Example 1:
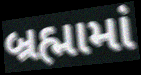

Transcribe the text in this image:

બ્રહ્મામાં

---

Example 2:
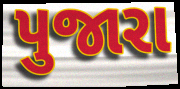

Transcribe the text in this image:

પુજારા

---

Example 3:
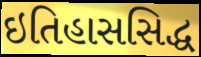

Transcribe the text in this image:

ઇતિહાસસિદ્ધ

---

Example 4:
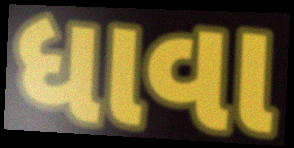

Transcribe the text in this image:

ધાવા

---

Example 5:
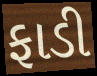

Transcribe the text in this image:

ફાડી